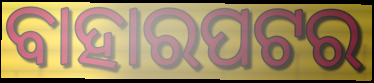
ବାହାରପଟର